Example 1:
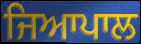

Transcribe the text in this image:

ਜਿਆਪਾਲ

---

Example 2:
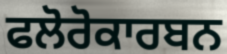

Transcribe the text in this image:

ਫਲੋਰੋਕਾਰਬਨ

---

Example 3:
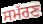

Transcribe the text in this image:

ਸਮੱਰਣ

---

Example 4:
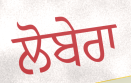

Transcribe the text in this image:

ਲੋਬੇਰਾ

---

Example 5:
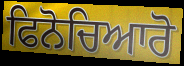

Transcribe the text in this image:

ਫਿਨੋਚਿਆਰੋ